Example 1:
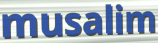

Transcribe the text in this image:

musalim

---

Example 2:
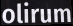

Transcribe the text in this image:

olirum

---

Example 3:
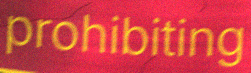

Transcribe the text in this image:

prohibiting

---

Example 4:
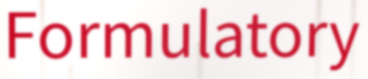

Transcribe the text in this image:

Formulatory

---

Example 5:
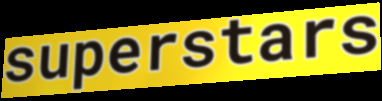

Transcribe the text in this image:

superstars